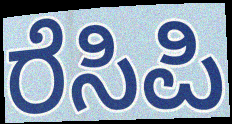
ರೆಸಿಪಿ